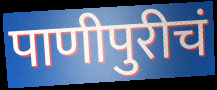
पाणीपुरीचं